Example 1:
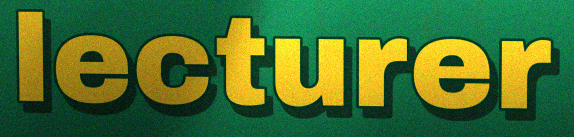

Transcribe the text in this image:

lecturer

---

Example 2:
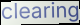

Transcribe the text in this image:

clearing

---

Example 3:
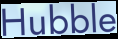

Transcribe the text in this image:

Hubble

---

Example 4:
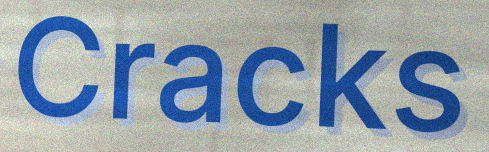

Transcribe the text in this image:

Cracks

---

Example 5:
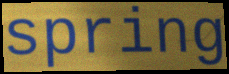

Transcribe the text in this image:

spring